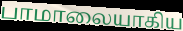
பாமாலையாகிய